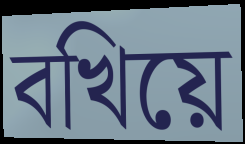
বখিয়ে